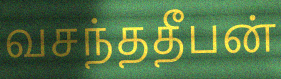
வசந்ததீபன்